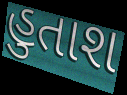
હુતાશ